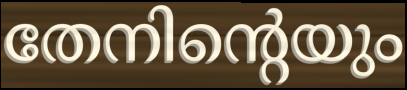
തേനിന്റെയും